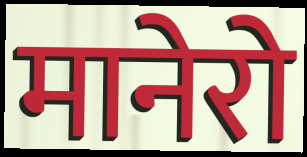
मानेरो